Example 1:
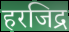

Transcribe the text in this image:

हरजिद्र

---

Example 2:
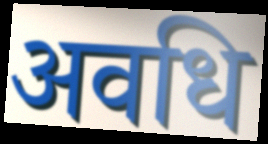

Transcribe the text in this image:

अवधि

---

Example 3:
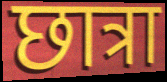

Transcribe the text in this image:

छात्रा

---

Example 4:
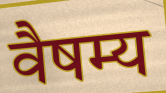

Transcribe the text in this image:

वैषम्य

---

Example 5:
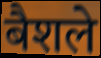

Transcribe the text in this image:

बैशले